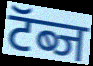
टॅब्ज